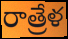
రాత్రేళ